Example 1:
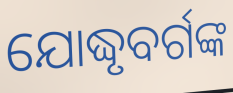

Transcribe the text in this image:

ଯୋଦ୍ଧୃବର୍ଗଙ୍କ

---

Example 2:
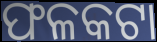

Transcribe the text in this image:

ଫଳକଟା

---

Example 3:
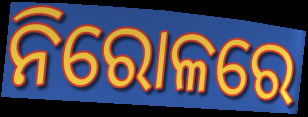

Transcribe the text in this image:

ନିରୋଳରେ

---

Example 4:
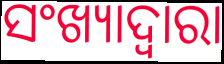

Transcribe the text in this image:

ସଂଖ୍ୟାଦ୍ୱାରା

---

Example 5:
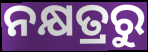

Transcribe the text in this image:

ନକ୍ଷତ୍ରରୁ